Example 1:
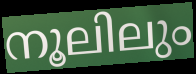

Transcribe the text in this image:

നൂലിലും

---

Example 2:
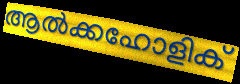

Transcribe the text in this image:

ആൽക്കഹോളിക്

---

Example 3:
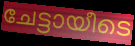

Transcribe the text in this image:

ചേട്ടായീടെ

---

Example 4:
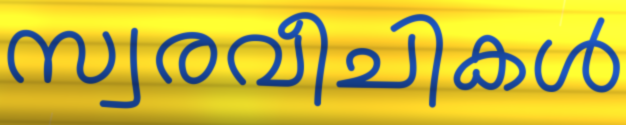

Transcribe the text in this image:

സ്വരവീചികൾ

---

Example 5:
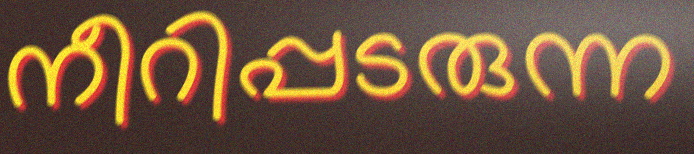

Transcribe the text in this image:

നീറിപ്പടരുന്ന